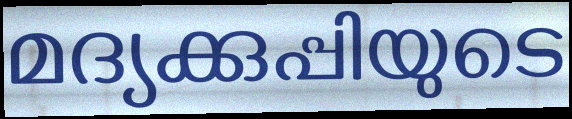
മദ്യക്കുപ്പിയുടെ